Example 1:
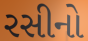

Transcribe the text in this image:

રસીનો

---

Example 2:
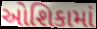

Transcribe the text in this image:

ઓશિકામાં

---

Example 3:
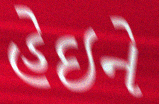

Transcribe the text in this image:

હેઇને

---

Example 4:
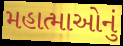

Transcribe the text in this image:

મહાત્માઓનું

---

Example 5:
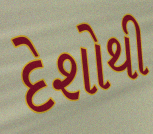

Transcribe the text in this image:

દેશોથી